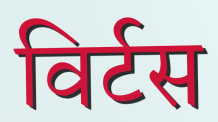
विर्टस